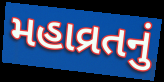
મહાવ્રતનું